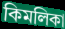
কিমলিকা